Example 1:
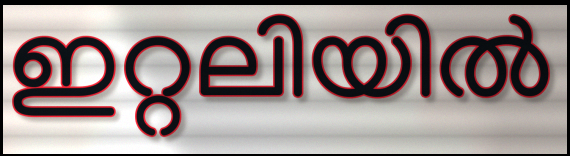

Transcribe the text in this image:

ഇറ്റലിയിൽ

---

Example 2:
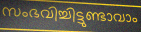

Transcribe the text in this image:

സംഭവിച്ചിട്ടുണ്ടാവാം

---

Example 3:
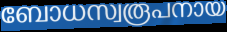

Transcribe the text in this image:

ബോധസ്വരൂപനായ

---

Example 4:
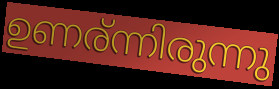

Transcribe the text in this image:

ഉണര്ന്നിരുന്നു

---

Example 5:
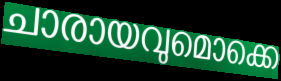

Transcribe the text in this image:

ചാരായവുമൊക്കെ